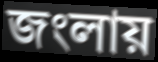
জংলায়